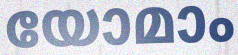
യോമാം